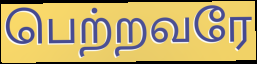
பெற்றவரே